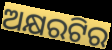
ଅକ୍ଷରଟିର